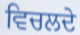
ਵਿਚਲਦੇ